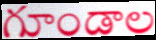
గూండాల